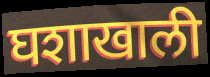
घशाखाली